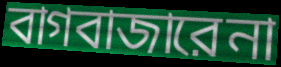
বাগবাজারেনা